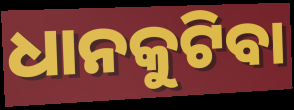
ଧାନକୁଟିବା